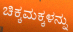
ಚಿಕ್ಕಮಕ್ಕಳನ್ನು